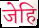
जेहि